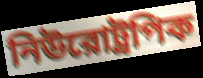
নিউরোট্রপিক